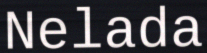
Nelada